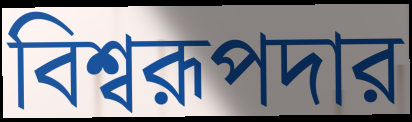
বিশ্বরূপদার